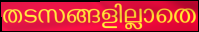
തടസങ്ങളില്ലാതെ